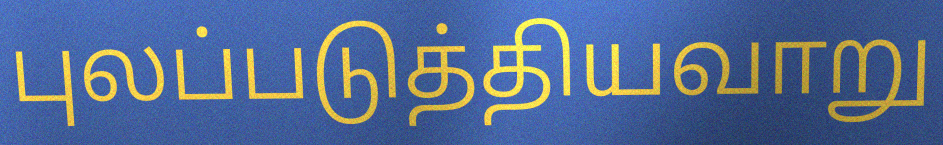
புலப்படுத்தியவாறு